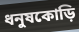
ধনুষকোড়ি